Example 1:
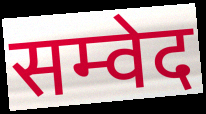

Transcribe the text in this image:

सम्वेद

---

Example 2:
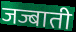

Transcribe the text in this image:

जज्‍बाती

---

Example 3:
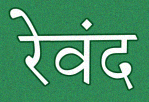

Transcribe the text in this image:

रेवंद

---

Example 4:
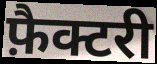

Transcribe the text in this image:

फ़ैक्टरी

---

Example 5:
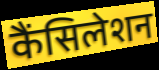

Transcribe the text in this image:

कैंसिलेशन